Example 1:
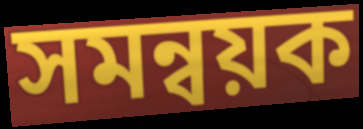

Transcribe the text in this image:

সমন্বয়ক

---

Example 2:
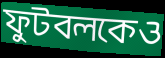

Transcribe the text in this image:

ফুটবলকেও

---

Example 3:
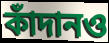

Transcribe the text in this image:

কাঁদানও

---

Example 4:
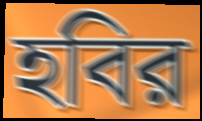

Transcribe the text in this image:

হবির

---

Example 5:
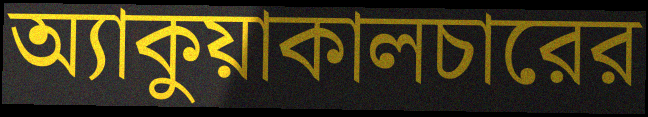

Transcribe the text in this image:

অ্যাকুয়াকালচারের